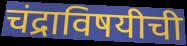
चंद्राविषयीची